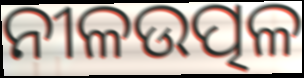
ନୀଳଉତ୍ପଳ